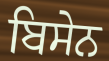
ਬਿਸੇਨ